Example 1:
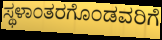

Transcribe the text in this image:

ಸ್ಥಳಾಂತರಗೊಂಡವರಿಗೆ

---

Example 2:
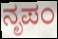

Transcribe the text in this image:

ನೃಪಂ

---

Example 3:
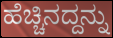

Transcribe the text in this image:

ಹೆಚ್ಚಿನದ್ದನ್ನು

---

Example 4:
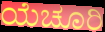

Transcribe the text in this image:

ಯೆಚೂರಿ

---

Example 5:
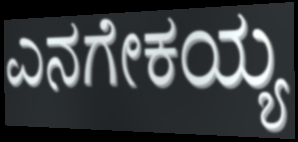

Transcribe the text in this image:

ಎನಗೇಕಯ್ಯ